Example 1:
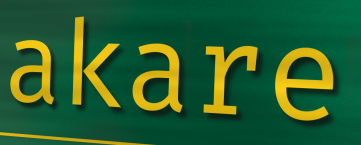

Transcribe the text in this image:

akare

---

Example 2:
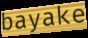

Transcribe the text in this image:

bayake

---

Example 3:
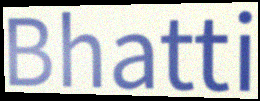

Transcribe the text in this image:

Bhatti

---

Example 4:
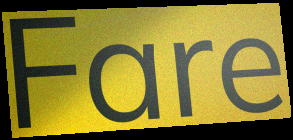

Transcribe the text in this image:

Fare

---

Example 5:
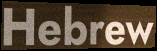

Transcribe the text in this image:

Hebrew